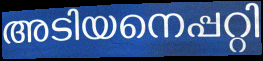
അടിയനെപ്പറ്റി